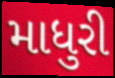
માધુરી